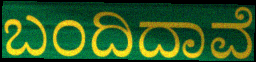
ಬಂದಿದಾವೆ